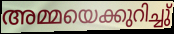
അമ്മയെക്കുറിച്ചു്